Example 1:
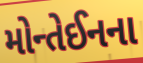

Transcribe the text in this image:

મોન્તેઈનના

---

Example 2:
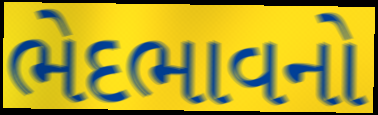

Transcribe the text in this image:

ભેદભાવનો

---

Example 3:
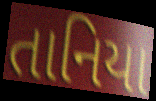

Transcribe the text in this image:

તાનિયા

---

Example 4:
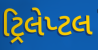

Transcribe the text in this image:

ટ્રિલેપ્ટલ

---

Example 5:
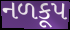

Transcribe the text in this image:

નળકૂપ